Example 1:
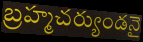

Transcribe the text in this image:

బ్రహ్మచర్యుండనై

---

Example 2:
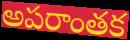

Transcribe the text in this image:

అపరాంతక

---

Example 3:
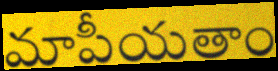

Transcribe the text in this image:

మాపీయతాం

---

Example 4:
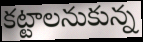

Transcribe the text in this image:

కట్టాలనుకున్న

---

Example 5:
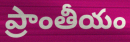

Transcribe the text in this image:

ప్రాంతీయం